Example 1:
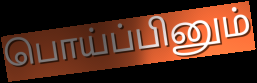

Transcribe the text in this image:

பொய்ப்பினும்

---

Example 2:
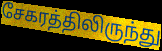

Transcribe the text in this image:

சேகரத்திலிருந்து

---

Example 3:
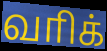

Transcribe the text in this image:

வரிக்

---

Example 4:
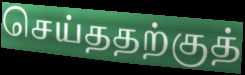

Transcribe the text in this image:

செய்ததற்குத்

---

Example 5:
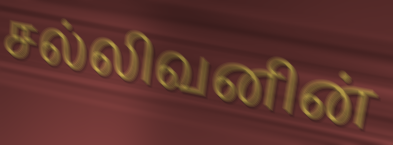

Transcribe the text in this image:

சல்லிவனின்